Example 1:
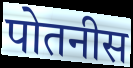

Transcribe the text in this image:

पोतनीस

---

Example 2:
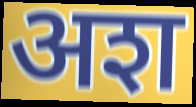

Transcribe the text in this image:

अश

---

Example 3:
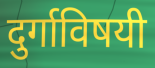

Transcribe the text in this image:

दुर्गाविषयी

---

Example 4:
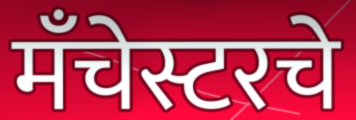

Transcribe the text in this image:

मँचेस्टरचे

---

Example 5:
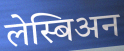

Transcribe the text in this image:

लेस्बिअन